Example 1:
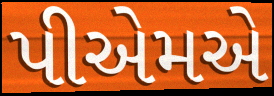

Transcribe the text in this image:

પીએમએ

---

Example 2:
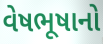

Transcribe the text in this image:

વેષભૂષાનો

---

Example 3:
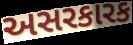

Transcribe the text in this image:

અસરકારક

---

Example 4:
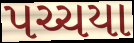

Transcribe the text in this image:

પચ્ચયા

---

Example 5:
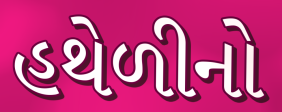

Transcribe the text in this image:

હથેળીનો